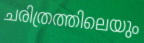
ചരിത്രത്തിലെയും